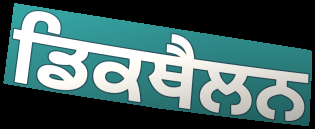
ਡਿਕਥੈਲਨ